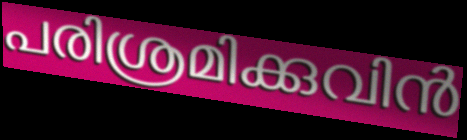
പരിശ്രമിക്കുവിൻ